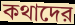
কথাদের